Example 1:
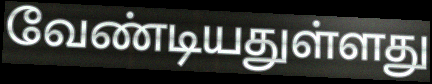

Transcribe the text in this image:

வேண்டியதுள்ளது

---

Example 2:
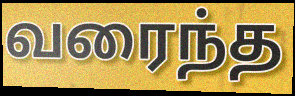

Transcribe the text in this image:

வரைந்த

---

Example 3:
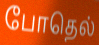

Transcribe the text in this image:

போதெல்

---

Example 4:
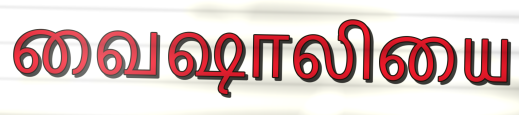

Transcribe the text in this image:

வைஷாலியை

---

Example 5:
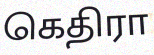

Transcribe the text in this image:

கெதிரா